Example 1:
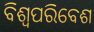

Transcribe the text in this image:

ବିଶ୍ୱପରିବେଶ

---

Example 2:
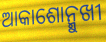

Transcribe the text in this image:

ଆକାଶୋନ୍ମୁଖୀ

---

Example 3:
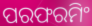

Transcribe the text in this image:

ପରଫରମିଂ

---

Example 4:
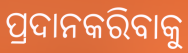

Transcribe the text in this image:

ପ୍ରଦାନକରିବାକୁ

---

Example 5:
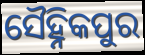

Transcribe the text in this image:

ସୈହ୍ନିକପୁର